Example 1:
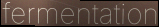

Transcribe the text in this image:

fermentation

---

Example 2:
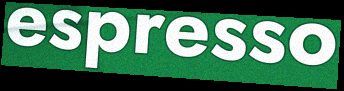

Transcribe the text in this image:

espresso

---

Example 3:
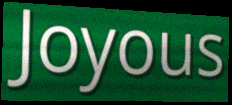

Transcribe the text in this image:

Joyous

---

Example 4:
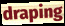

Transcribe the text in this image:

draping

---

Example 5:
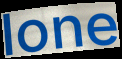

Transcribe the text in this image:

lone